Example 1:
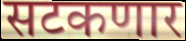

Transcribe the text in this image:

सटकणार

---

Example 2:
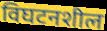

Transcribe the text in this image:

विघटनशील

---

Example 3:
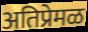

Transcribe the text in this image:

अतिप्रेमळ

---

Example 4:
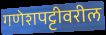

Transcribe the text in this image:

गणेशपट्टीवरील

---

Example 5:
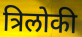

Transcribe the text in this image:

त्रिलोकी